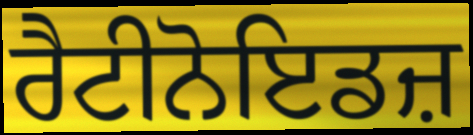
ਰੈਟੀਨੋਇਡਜ਼